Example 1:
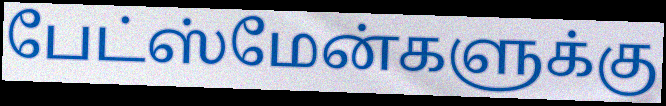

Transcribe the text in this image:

பேட்ஸ்மேன்களுக்கு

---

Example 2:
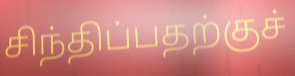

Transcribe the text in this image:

சிந்திப்பதற்குச்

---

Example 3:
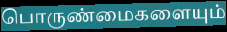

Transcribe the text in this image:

பொருண்மைகளையும்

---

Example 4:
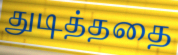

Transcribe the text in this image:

துடித்ததை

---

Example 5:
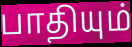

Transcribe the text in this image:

பாதியும்